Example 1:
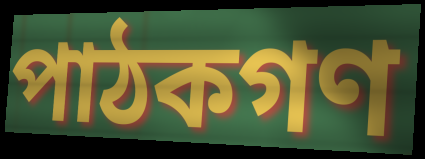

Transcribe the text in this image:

পাঠকগণ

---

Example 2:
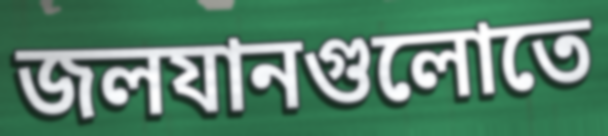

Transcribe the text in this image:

জলযানগুলোতে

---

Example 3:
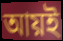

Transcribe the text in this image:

আয়ই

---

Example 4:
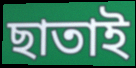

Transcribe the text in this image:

ছাতাই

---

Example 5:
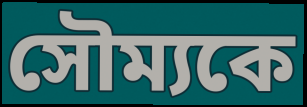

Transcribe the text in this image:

সৌম্যকে